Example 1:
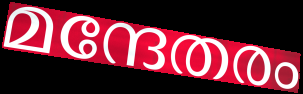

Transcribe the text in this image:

മന്ദേതരം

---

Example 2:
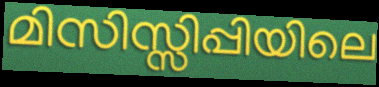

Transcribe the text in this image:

മിസിസ്സിപ്പിയിലെ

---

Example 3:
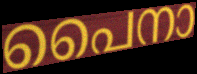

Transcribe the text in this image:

പൈനാ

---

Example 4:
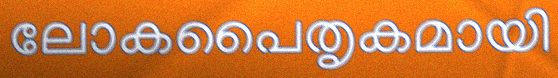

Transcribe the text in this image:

ലോകപൈതൃകമായി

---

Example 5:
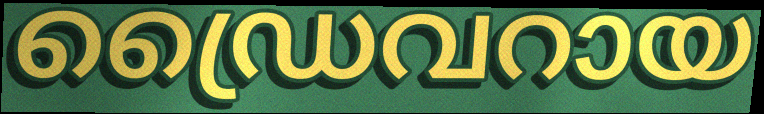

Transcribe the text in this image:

ഡ്രൈവറായ